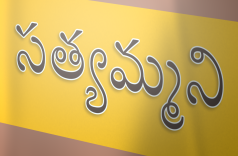
సత్యమ్మని